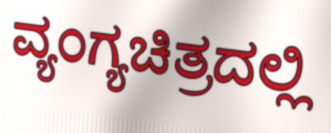
ವ್ಯಂಗ್ಯಚಿತ್ರದಲ್ಲಿ